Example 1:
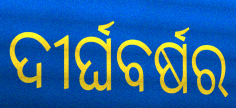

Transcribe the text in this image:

ଦୀର୍ଘବର୍ଷର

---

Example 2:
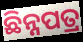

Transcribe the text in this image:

ଛିନ୍ନପତ୍ର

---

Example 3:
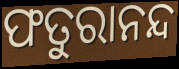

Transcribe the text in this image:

ଫତୁରାନନ୍ଦ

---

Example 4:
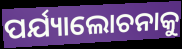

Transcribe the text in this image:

ପର୍ଯ୍ୟାଲୋଚନାକୁ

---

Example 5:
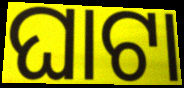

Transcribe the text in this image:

ଘାଟା